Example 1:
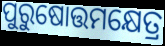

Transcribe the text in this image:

ପୁରୁଷୋତ୍ତମକ୍ଷେତ୍ର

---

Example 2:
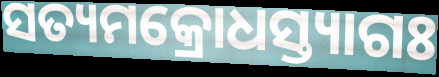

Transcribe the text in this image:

ସତ୍ୟମକ୍ରୋଧସ୍ତ୍ୟାଗଃ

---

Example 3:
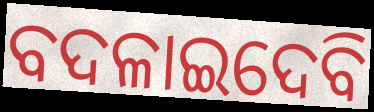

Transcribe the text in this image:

ବଦଳାଇଦେବି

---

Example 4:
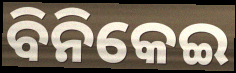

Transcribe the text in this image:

ବିନିକେଇ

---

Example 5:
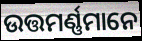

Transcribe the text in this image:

ଉତ୍ତମର୍ଣ୍ଣମାନେ